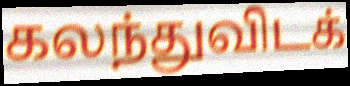
கலந்துவிடக்